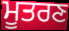
ਮੂਤਰਣ